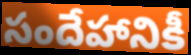
సందేహానికీ